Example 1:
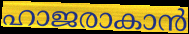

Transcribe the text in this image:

ഹാജരാകാൻ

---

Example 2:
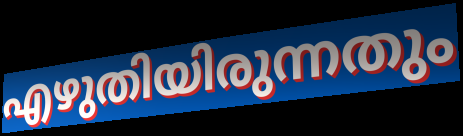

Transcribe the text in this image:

എഴുതിയിരുന്നതും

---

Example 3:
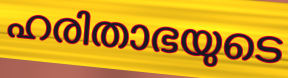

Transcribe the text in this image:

ഹരിതാഭയുടെ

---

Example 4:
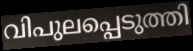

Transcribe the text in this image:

വിപുലപ്പെടുത്തി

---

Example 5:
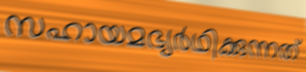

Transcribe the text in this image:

സഹായമഭ്യർഥിക്കുന്നത്